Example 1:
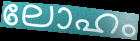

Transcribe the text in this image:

ലോഹം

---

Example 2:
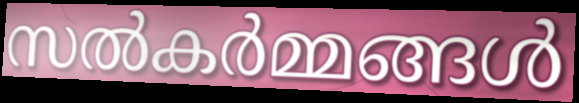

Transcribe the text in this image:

സൽകർമ്മങ്ങൾ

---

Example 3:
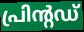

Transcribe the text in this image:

പ്രിന്റഡ്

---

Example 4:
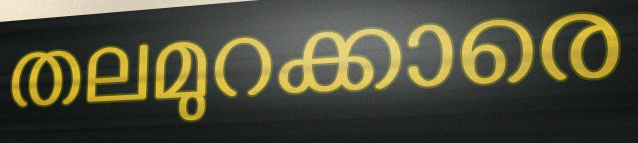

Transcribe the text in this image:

തലമുറക്കാരെ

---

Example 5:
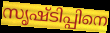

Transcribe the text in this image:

സൃഷ്ടിപ്പിനെ